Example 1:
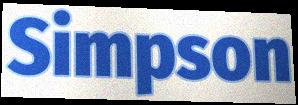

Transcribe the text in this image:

Simpson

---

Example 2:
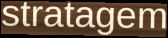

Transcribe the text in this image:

stratagem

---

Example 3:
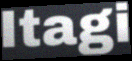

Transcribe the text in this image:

Itagi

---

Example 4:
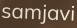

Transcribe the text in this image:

samjavi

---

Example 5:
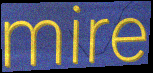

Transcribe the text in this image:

mire